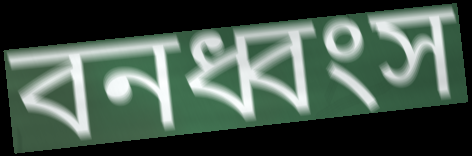
বনধ্বংস